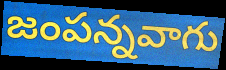
జంపన్నవాగు